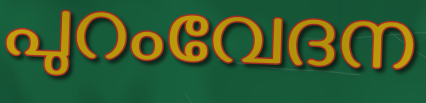
പുറംവേദന